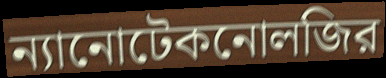
ন্যানোটেকনোলজির